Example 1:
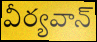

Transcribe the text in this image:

వీర్యవాన్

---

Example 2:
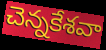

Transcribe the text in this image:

చెన్నకేశవా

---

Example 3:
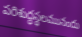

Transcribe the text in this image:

పరిశుద్ధస్థలమునందు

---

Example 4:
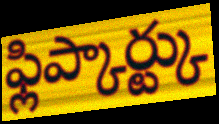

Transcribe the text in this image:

ఫ్లిప్కార్ట్కు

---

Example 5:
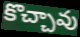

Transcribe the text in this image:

కొచ్చావు